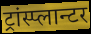
ट्रांस्प्लान्टर